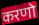
करणो